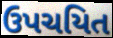
ઉપચયિત